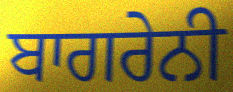
ਬਾਗਰੇਨੀ